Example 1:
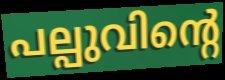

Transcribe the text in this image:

പല്പുവിന്റെ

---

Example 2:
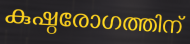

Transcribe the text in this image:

കുഷ്ഠരോഗത്തിന്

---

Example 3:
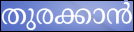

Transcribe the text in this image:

തുരക്കാൻ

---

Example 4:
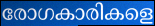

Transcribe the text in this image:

രോഗകാരികളെ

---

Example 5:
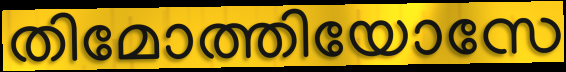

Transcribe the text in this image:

തിമോത്തിയോസേ